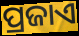
ପ୍ରଜାଏ